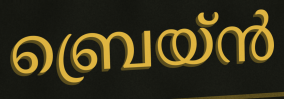
ബ്രെയ്ൻ